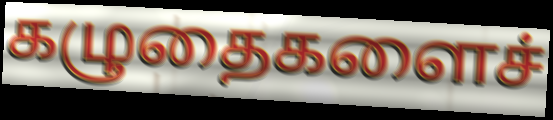
கழுதைகளைச்